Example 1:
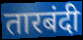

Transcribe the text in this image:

तारबंदी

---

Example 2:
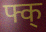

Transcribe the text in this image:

फ्क्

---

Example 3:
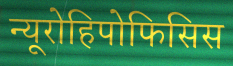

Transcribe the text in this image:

न्यूरोहिपोफिसिस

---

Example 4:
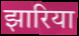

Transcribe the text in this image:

झारिया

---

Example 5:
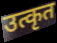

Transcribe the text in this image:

उत्कृत